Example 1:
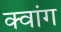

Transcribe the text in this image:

क्वांग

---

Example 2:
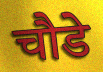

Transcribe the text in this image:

चौडे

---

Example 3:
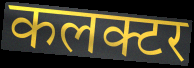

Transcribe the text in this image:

कलक्टर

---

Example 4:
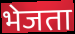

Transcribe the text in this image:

भेजता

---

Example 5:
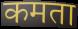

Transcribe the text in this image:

कमता